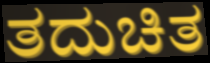
ತದುಚಿತ